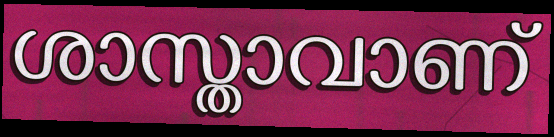
ശാസ്താവാണ്